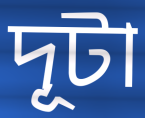
দূটা